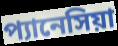
প্যানেসিয়া